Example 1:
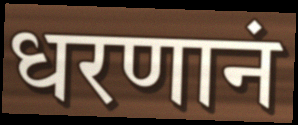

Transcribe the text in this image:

धरणानं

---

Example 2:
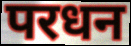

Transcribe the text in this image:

परधन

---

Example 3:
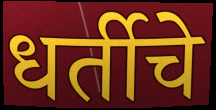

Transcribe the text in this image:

धर्तीचे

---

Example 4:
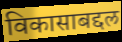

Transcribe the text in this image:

विकासाबद्दल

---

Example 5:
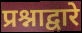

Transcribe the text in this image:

प्रश्नाद्वारे